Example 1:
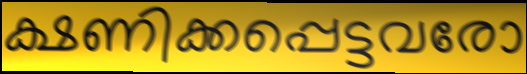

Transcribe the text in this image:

ക്ഷണിക്കപ്പെട്ടവരോ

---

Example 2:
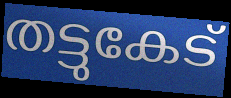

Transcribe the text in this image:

തട്ടുകേട്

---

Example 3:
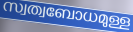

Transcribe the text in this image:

സ്വത്വബോധമുള്ള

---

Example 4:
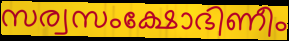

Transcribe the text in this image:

സര്വസംക്ഷോഭിണീം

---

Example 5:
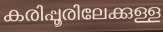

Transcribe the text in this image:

കരിപ്പൂരിലേക്കുള്ള